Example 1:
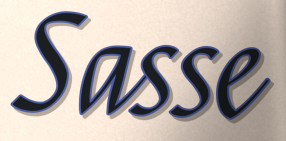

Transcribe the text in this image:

Sasse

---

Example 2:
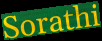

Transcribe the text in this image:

Sorathi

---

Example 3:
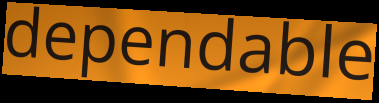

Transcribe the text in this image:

dependable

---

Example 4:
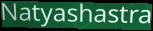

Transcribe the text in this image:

Natyashastra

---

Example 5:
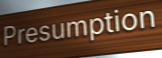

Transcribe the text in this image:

Presumption